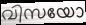
വിസയോ